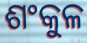
ଶଂକୁଳ